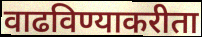
वाढविण्याकरीता